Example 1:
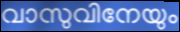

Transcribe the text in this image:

വാസുവിനേയും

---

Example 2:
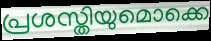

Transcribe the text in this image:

പ്രശസ്തിയുമൊക്കെ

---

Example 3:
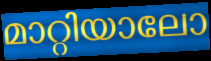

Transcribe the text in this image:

മാറ്റിയാലോ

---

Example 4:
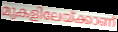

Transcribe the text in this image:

മുകളിലേയ്ക്കാണ്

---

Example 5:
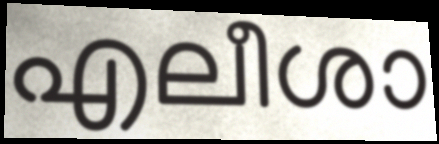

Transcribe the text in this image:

എലീശാ